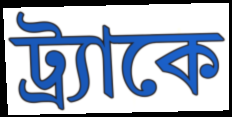
ট্র্যাকে